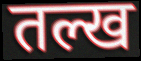
तल्ख